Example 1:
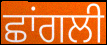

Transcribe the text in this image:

ਛਾਂਗਲੀ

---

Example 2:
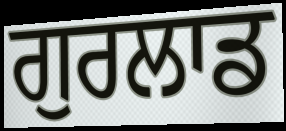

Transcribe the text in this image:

ਗੁਰਲਾਡ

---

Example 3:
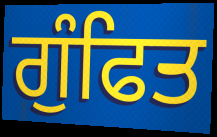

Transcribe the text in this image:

ਗੁੰਫਿਤ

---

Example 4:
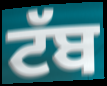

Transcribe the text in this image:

ਟੱਬ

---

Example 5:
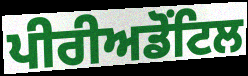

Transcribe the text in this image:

ਪੀਰੀਅਡੋਂਟਿਲ